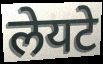
लेयटे